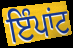
ਇੰਪਾਂਟ